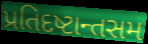
પ્રતિદષ્ટાન્તસમ